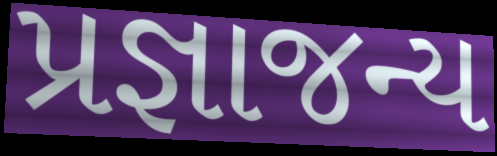
પ્રજ્ઞાજન્ય